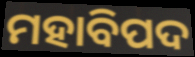
ମହାବିପଦ